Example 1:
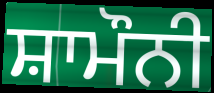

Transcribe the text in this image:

ਸ਼ਾਮੌਨੀ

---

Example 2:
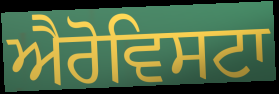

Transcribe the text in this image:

ਐਰੋਵਿਸਟਾ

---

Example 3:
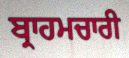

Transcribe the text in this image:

ਬ੍ਰਾਹਮਚਾਰੀ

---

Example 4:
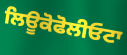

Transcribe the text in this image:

ਲਿਊਕੋਫੋਲੀਓਟਾ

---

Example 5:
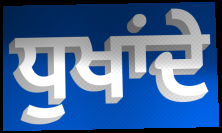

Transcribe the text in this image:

ਧੁਖਾਂਦੇ